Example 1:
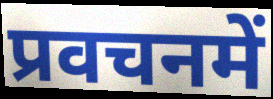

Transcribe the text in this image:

प्रवचनमें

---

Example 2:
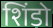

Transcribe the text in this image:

शिंडो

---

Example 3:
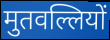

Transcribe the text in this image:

मुतवल्लियों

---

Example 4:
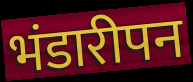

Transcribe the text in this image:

भंडारीपन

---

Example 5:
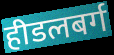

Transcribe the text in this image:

हीडलबर्ग